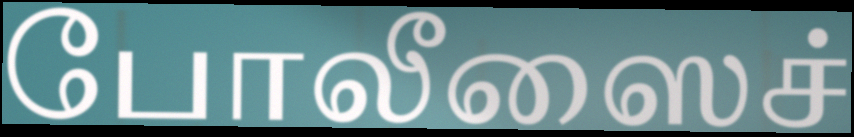
போலீஸைச்